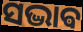
ସଦ୍ଭାଵ